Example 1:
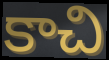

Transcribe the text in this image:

కాచి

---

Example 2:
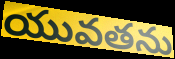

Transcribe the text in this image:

యువతను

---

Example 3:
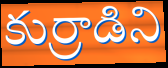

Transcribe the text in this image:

కుర్రాడిని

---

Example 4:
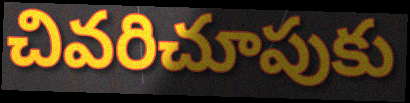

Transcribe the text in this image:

చివరిచూపుకు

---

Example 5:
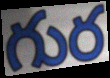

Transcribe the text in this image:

గుర